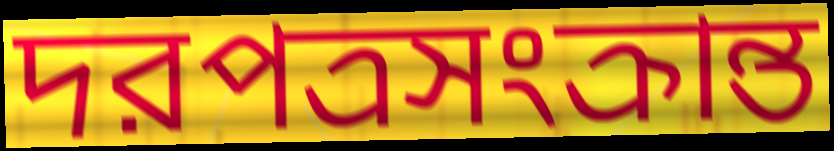
দরপত্রসংক্রান্ত